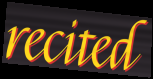
recited